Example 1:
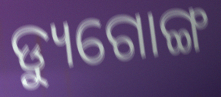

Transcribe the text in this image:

ଡ୍ୟୁଗୋଙ୍ଗ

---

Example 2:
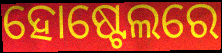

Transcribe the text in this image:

ହୋଷ୍ଟେଲରେ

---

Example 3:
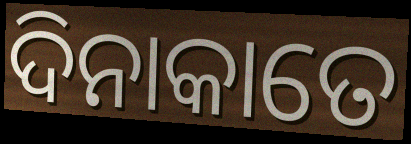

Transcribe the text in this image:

ଦିନାକାତେ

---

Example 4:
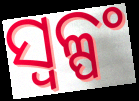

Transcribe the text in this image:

ସ୍ୱଳ୍ପଂ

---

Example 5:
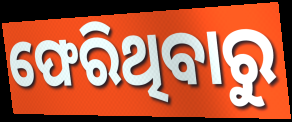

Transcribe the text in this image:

ଫେରିଥିବାରୁ